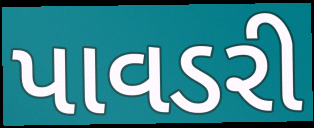
પાવડરી